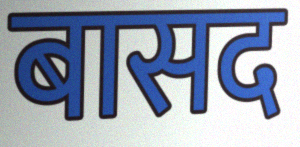
बासद